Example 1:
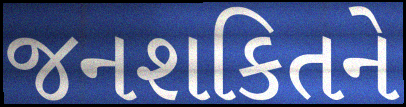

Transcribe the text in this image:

જનશકિતને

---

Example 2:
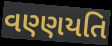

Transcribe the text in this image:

વણ્ણયતિ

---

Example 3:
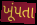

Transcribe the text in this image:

ખૂંપતા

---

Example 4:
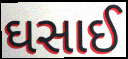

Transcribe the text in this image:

ઘસાઈ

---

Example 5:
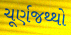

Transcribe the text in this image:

ચૂર્ણજથ્થો